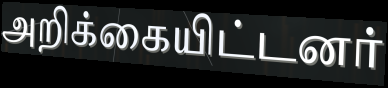
அறிக்கையிட்டனர்